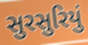
સુરસુરિયું